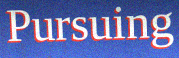
Pursuing